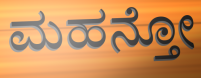
ಮಹನ್ತೋ